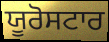
ਯੂਰੋਸਟਾਰ